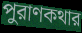
পুরাণকথার